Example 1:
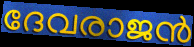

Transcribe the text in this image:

ദേവരാജൻ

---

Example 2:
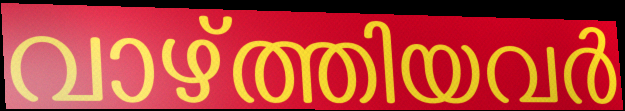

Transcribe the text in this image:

വാഴ്ത്തിയവർ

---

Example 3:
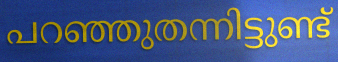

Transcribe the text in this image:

പറഞ്ഞുതന്നിട്ടുണ്ട്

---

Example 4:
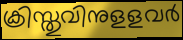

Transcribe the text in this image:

ക്രിസ്തുവിനുളളവർ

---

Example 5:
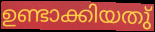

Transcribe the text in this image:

ഉണ്ടാക്കിയതു്